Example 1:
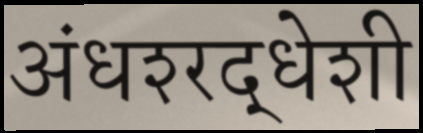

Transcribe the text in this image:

अंधश्रद्धेशी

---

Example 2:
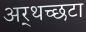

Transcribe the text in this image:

अर्थच्छटा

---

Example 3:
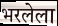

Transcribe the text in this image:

भरलेला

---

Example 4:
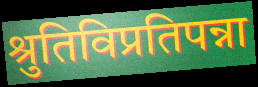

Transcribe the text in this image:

श्रुतिविप्रतिपन्ना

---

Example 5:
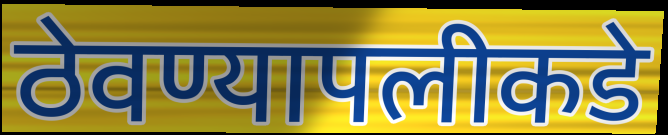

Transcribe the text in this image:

ठेवण्यापलीकडे